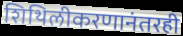
शिथिलीकरणानंतरही